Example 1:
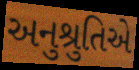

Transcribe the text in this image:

અનુશ્રુતિએ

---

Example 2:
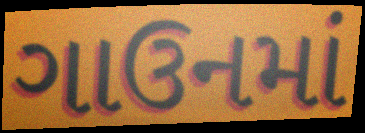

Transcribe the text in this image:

ગાઉનમાં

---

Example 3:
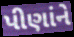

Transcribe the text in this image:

પીણાંને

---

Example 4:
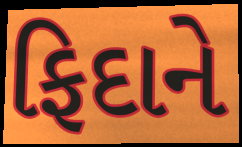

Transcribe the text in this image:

ફિદાને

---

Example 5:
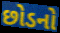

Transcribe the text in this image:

છોડનો